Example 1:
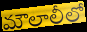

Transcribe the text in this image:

మౌలాలీలో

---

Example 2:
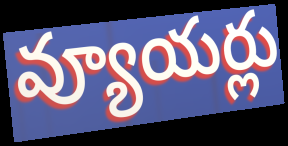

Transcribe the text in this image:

వ్యూయర్లు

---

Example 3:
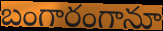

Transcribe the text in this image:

బంగారంగానూ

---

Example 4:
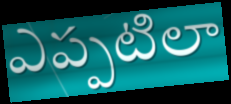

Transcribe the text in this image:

ఎప్పటిలా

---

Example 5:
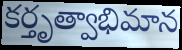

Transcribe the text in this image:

కర్తృత్వాభిమాన